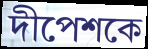
দীপেশকে